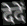
देदें